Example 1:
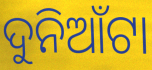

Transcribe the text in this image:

ଦୁନିଆଁଟା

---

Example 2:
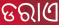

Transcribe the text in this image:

ଡରାଏ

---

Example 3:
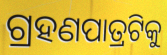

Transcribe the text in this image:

ଗ୍ରହଣପାତ୍ରଟିକୁ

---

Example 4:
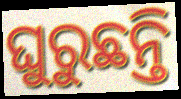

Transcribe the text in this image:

ଘୁରୁଛନ୍ତି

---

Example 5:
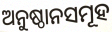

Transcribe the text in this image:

ଅନୁଷ୍ଠାନସମୂହ